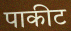
पाकीट